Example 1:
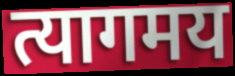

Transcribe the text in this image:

त्यागमय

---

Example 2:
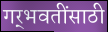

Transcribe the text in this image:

गर्भवतींसाठी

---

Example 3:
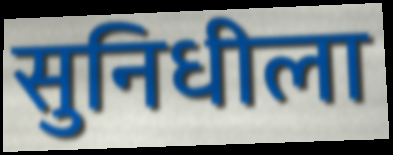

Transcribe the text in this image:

सुनिधीला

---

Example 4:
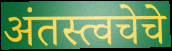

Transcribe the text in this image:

अंतस्त्वचेचे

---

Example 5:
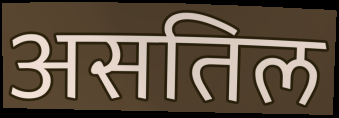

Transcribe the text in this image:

असतिल